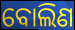
ବୋଲିଣ